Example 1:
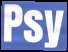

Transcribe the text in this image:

Psy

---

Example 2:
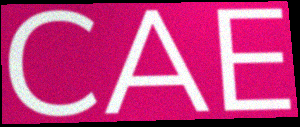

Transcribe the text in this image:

CAE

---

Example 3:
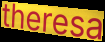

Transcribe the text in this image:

theresa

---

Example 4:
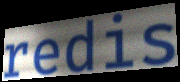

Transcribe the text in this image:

redis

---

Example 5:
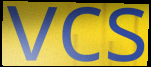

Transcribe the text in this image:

vcs